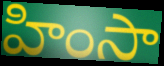
హింసా